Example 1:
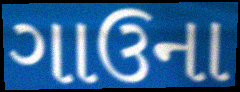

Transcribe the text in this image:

ગાઉના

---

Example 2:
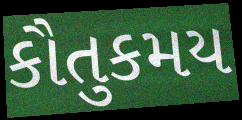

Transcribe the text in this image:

કૌતુકમય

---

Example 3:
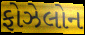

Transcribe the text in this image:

ફોઝેલોન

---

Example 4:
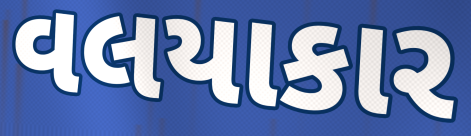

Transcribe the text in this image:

વલયાકાર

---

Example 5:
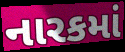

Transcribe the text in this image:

નારકમાં